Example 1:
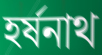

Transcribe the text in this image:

হর্ষনাথ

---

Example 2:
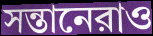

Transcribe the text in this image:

সন্তানেরাও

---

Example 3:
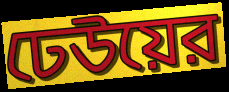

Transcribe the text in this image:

ঢেউয়ের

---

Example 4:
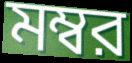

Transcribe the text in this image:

মম্বর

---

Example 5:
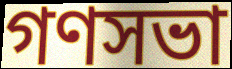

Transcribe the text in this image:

গণসভা